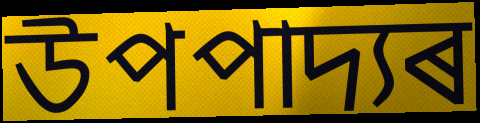
উপপাদ্যৰ